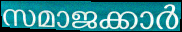
സമാജക്കാർ